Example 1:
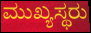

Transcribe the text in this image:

ಮುಖ್ಯಸ್ಥರು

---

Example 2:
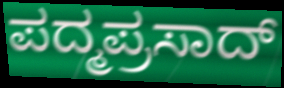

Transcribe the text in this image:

ಪದ್ಮಪ್ರಸಾದ್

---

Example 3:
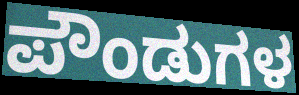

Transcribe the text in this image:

ಪೌಂಡುಗಳ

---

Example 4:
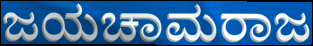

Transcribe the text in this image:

ಜಯಚಾಮರಾಜ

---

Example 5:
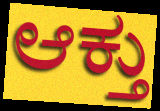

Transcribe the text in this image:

ಆಕ್ತು